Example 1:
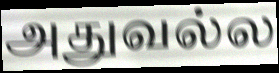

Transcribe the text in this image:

அதுவல்ல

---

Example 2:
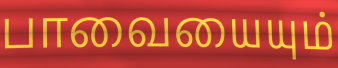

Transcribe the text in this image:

பாவையையும்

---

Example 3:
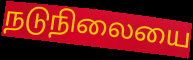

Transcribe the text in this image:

நடுநிலையை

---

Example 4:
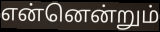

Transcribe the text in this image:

என்னென்றும்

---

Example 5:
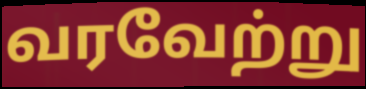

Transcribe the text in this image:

வரவேற்று